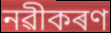
নৱীকৰণ